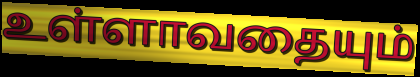
உள்ளாவதையும்